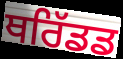
ਥਰਿੱਡਡ